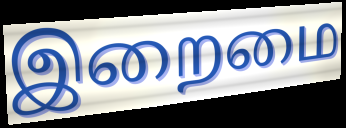
இறைமை